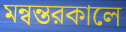
মন্বন্তরকালে